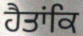
ਹੈਤਾਂਕਿ